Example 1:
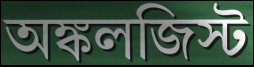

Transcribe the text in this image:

অঙ্কলজিস্ট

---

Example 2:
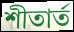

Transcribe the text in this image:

শীতার্ত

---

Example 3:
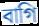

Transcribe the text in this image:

বাগি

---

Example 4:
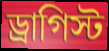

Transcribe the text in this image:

ড্রাগিস্ট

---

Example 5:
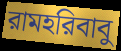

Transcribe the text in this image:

রামহরিবাবু